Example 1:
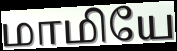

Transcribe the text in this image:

மாமியே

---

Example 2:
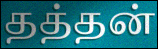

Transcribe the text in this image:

தத்தன்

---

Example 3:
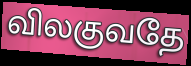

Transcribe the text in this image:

விலகுவதே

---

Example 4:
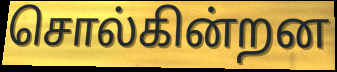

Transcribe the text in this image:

சொல்கின்றன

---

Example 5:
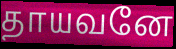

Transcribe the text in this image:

தாயவனே